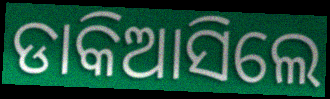
ଡାକିଆସିଲେ